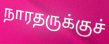
நாரதருக்குச்